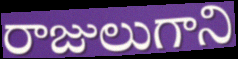
రాజులుగాని